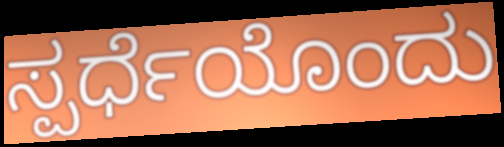
ಸ್ಪರ್ಧೆಯೊಂದು